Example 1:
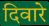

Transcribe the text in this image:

दिवारे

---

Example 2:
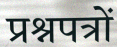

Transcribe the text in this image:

प्रश्नपत्रों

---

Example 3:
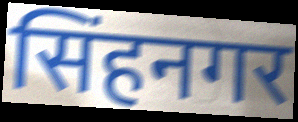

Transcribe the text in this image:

सिंहनगर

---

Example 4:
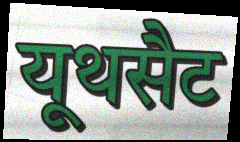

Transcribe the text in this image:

यूथसैट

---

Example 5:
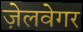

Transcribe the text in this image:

ज़ेलवेगर